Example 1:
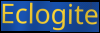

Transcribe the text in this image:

Eclogite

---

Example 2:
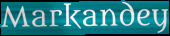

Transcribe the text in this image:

Markandey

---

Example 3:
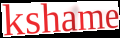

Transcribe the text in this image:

kshame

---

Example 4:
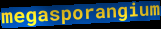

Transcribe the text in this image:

megasporangium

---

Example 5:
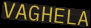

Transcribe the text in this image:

VAGHELA